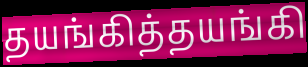
தயங்கித்தயங்கி